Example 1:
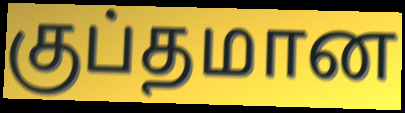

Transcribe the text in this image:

குப்தமான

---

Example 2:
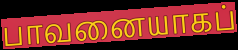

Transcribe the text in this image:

பாவனையாகப்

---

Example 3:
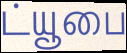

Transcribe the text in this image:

ட்யூபை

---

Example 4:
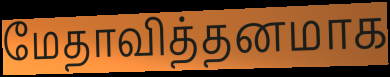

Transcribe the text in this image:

மேதாவித்தனமாக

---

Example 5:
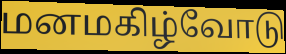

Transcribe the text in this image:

மனமகிழ்வோடு